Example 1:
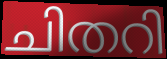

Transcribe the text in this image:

ചിതറി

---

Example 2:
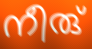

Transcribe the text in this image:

നീരു്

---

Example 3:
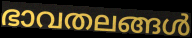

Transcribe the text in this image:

ഭാവതലങ്ങൾ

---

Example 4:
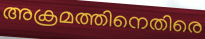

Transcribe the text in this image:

അക്രമത്തിനെതിരെ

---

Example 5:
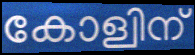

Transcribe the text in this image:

കോള്വിന്